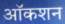
ऑकशन